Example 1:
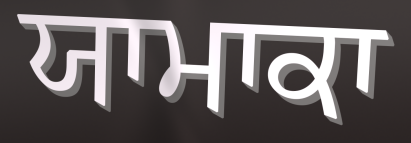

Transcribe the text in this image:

ਯਾਮਾਕਾ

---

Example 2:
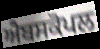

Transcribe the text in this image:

ਐਬਸਕੋਪਲ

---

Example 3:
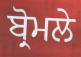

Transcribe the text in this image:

ਬ੍ਰੋਮਲੇ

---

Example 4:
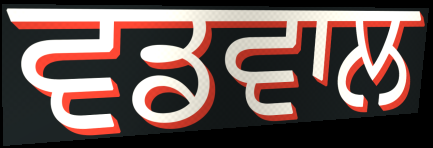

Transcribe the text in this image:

ਵਡਵਾਲ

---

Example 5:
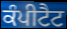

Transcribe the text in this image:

ਕੰਪੀਟੈਟ